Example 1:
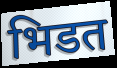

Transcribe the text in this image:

भिडत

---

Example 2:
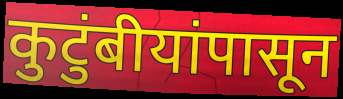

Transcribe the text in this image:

कुटुंबीयांपासून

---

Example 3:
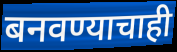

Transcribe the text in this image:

बनवण्याचाही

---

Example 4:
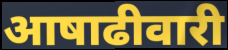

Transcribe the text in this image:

आषाढीवारी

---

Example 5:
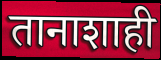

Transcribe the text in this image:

तानाशाही